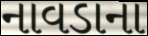
નાવડાના